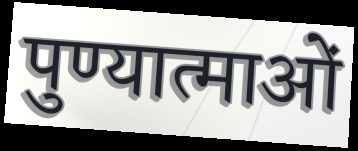
पुण्यात्माओं